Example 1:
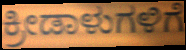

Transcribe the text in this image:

ಕ್ರೀಡಾಳುಗಳಿಗೆ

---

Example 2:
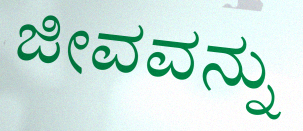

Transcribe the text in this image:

ಜೀವವನ್ನು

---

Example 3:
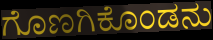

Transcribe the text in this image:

ಗೊಣಗಿಕೊಂಡನು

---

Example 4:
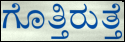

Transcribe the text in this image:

ಗೊತ್ತಿರುತ್ತೆ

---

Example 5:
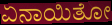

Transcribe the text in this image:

ಏನಾಯಿತೋ